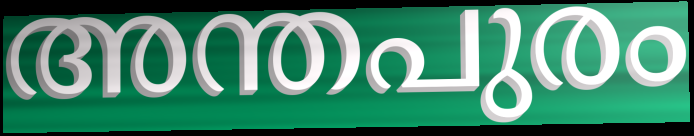
അന്തപുരം